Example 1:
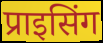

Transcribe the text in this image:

प्राइसिंग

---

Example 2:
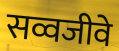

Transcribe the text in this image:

सव्वजीवे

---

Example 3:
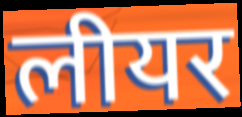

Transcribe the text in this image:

लीयर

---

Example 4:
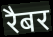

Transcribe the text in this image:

रैबर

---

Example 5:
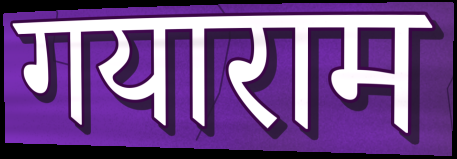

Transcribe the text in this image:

गयाराम